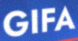
GIFA